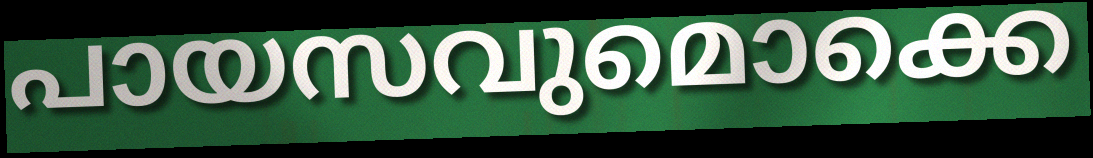
പായസവുമൊക്കെ